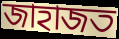
জাহাজত